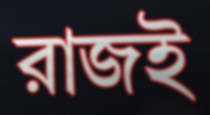
রাজই